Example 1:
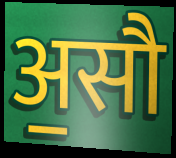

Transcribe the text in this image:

अ॒सौ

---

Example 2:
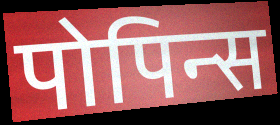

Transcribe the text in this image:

पोपिन्स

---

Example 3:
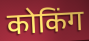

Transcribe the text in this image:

कोकिंग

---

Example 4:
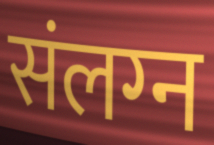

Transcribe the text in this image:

संलग्‍न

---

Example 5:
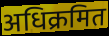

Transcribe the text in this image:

अधिक्रमित